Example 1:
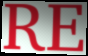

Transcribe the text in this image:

RE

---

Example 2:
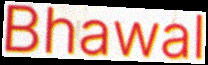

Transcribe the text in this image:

Bhawal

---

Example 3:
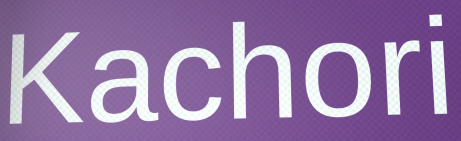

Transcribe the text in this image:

Kachori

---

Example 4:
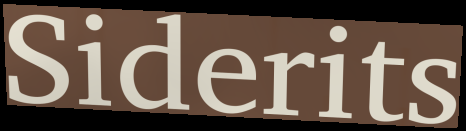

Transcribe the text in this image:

Siderits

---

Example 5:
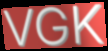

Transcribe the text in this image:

VGK